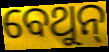
ବେଥୁନ୍